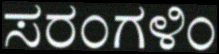
ಸರಂಗಳಿಂ